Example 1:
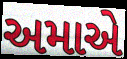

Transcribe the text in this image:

અમાએ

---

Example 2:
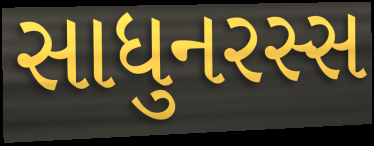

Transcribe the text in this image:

સાધુનરસ્સ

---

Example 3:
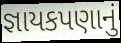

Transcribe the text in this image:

જ્ઞાયકપણાનું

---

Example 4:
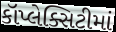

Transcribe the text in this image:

કૉપ્લેક્સિટીમાં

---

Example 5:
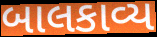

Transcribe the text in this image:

બાલકાવ્ય